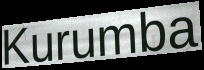
Kurumba